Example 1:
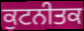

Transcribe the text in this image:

ਕੁਟਨੀਤਕ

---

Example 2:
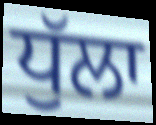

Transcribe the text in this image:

ਧੁੱਲਾ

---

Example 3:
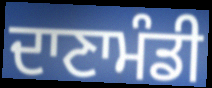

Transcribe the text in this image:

ਦਾਣਾਮੰਡੀ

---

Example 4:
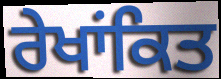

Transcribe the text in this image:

ਰੇਖਾਂਕਿਤ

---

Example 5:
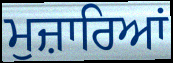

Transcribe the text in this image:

ਮੁਜ਼ਾਰਿਆਂ